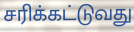
சரிக்கட்டுவது